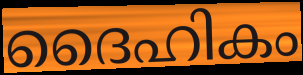
ദൈഹികം